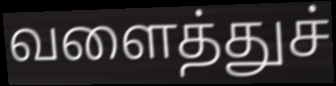
வளைத்துச்